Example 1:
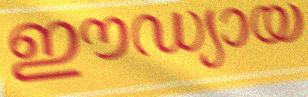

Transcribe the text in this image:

ഈഡ്യായ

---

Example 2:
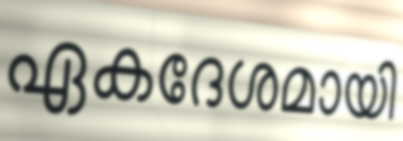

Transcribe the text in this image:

ഏകദേശമായി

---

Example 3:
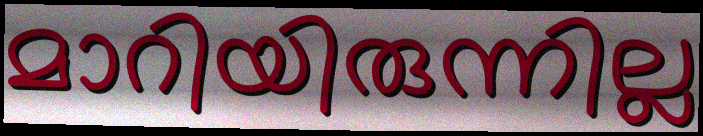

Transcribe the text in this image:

മാറിയിരുന്നില്ല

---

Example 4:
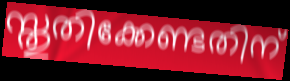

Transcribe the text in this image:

സ്തുതിക്കേണ്ടതിന്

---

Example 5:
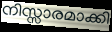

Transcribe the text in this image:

നിസ്സാരമാക്കി